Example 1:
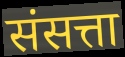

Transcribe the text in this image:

संसत्ता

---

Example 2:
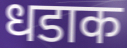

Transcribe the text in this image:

धडाक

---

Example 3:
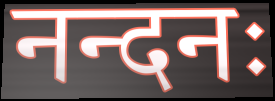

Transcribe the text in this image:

नन्दनः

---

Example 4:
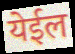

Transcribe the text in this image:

येईल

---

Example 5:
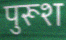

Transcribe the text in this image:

पुरूश